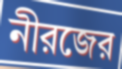
নীরজের